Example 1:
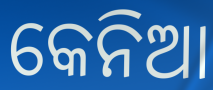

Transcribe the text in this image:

କେନିଆ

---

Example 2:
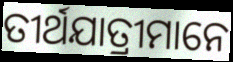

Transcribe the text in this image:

ତୀର୍ଥଯାତ୍ରୀମାନେ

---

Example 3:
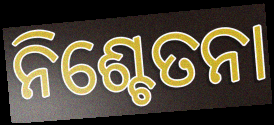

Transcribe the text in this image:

ନିଶ୍ଚେତନା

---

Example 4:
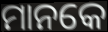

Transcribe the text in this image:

ମାନକେ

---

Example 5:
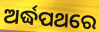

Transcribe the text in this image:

ଅର୍ଦ୍ଧପଥରେ